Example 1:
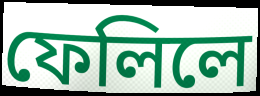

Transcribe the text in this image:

ফেলিলে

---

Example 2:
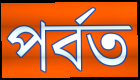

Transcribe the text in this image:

পর্বত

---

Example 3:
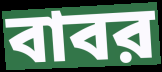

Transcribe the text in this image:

বাবর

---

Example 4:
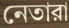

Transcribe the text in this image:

নেতারা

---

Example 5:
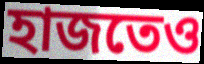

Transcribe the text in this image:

হাজতেও